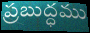
ప్రబుద్ధము